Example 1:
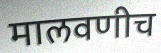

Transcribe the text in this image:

मालवणीच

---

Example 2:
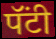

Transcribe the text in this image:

पॅंटी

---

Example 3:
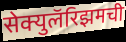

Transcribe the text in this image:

सेक्युलॅरिझमची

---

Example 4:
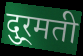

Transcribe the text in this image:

दुर्मती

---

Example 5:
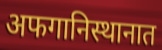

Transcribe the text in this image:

अफगानिस्थानात